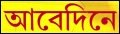
আবেদিনে